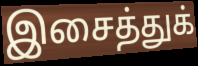
இசைத்துக்